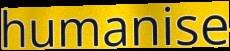
humanise